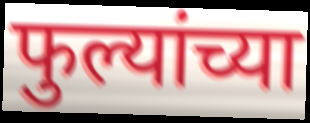
फुल्यांच्या